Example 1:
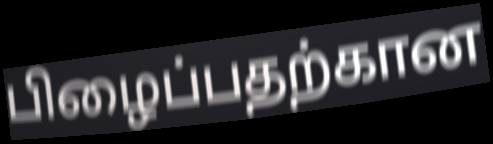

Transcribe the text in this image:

பிழைப்பதற்கான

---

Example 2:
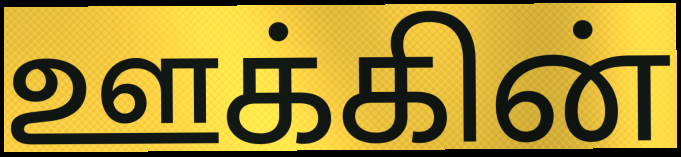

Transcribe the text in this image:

ஊக்கின்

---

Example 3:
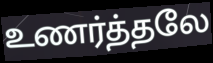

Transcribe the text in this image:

உணர்த்தலே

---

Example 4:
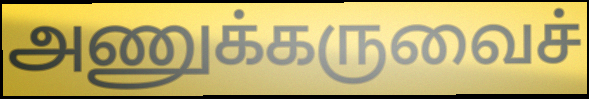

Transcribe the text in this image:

அணுக்கருவைச்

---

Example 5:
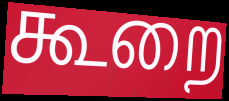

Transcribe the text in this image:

கூறை